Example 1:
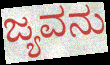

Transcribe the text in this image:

ಜ್ಯವನು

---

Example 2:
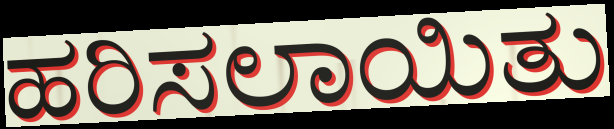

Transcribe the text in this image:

ಹರಿಸಲಾಯಿತು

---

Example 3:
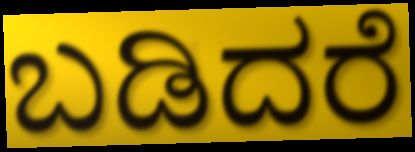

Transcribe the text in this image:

ಬಡಿದರೆ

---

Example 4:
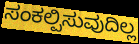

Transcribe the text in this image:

ಸಂಕಲ್ಪಿಸುವುದಿಲ್ಲ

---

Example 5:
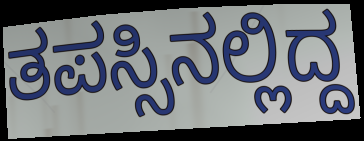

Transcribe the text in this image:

ತಪಸ್ಸಿನಲ್ಲಿದ್ದ